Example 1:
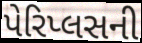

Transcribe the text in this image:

પેરિપ્લસની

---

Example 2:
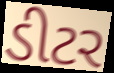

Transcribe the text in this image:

ડીટર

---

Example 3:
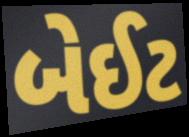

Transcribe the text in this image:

બેઈટ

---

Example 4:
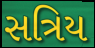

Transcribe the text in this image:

સત્રિય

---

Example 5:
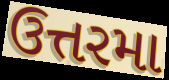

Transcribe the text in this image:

ઉત્તરમા